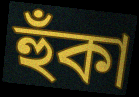
হুঁকা